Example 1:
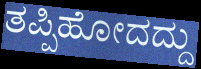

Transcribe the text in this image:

ತಪ್ಪಿಹೋದದ್ದು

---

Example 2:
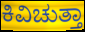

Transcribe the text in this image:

ಕಿವಿಚುತ್ತಾ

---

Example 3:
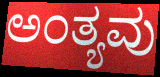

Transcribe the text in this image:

ಅಂತ್ಯವು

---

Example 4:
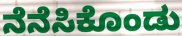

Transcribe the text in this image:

ನೆನೆಸಿಕೊಂಡು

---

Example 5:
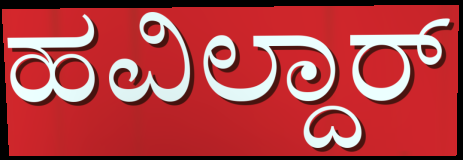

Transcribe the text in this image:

ಹವಿಲ್ದಾರ್